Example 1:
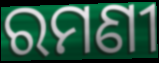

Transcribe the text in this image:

ରମଣୀ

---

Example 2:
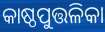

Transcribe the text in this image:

କାଷ୍ଠପୁତ୍ତଳିକା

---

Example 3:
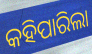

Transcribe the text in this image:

କହିପାରିଲା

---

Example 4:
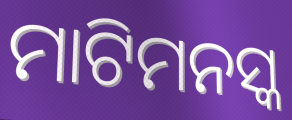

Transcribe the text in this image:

ମାଟିମନସ୍କ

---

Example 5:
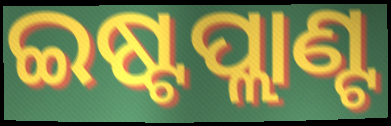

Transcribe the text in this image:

ଇଷ୍ଟପ୍ଲାଣ୍ଟ